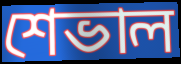
শেভাল